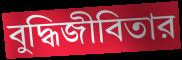
বুদ্ধিজীবিতার